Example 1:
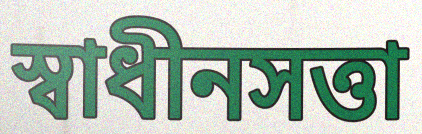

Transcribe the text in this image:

স্বাধীনসত্তা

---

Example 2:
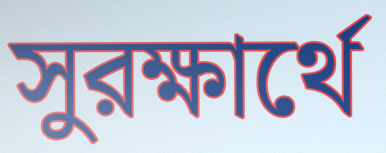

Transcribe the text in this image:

সুরক্ষার্থে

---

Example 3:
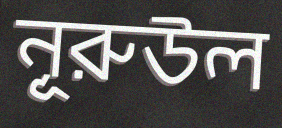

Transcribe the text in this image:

নূরুউল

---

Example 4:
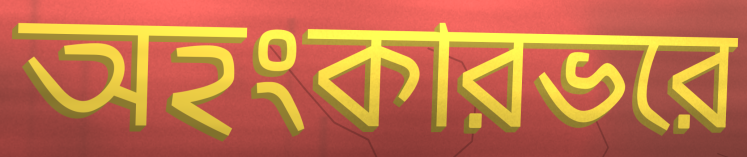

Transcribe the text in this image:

অহংকারভরে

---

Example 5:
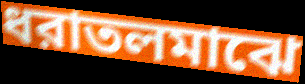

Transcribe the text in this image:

ধরাতলমাঝে